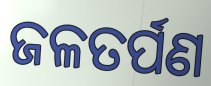
ଜଳତର୍ପଣ